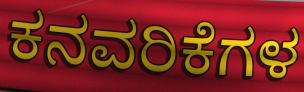
ಕನವರಿಕೆಗಳ